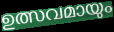
ഉത്സവമായും